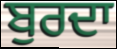
ਬੁਰਦਾ